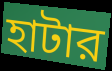
হাটার